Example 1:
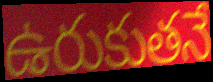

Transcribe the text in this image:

ఉరుకుతనే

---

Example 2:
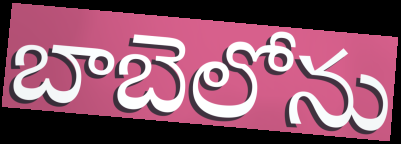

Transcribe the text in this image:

బాబెలోను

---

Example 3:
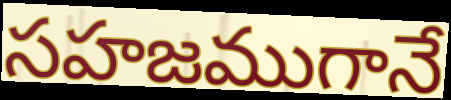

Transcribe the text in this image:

సహజముగానే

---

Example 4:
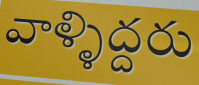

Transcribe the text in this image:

వాళ్ళిద్దరు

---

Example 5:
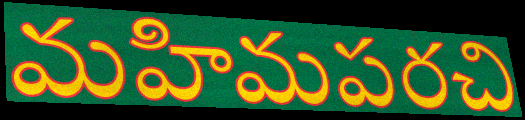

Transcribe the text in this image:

మహిమపరచి